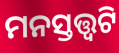
ମନସ୍ତତ୍ତ୍ୱଟି